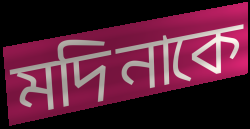
মদিনাকে